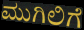
ಮುಗಿಲಿಗೆ